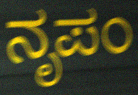
ನೃಪಂ